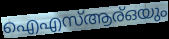
ഐഎസ്ആര്ഒയും